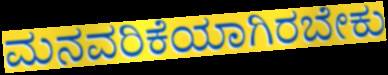
ಮನವರಿಕೆಯಾಗಿರಬೇಕು